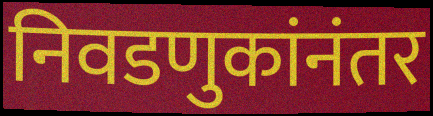
निवडणुकांनंतर